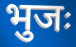
भुजः